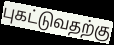
புகட்டுவதற்கு